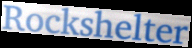
Rockshelter